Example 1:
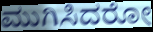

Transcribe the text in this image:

ಮುಗಿಸಿದರೋ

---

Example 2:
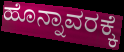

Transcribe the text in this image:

ಹೊನ್ನಾವರಕ್ಕೆ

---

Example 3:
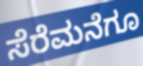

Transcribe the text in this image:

ಸೆರೆಮನೆಗೂ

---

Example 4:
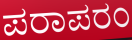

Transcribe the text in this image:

ಪರಾಪರಂ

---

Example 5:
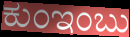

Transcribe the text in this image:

ಕುಂಇಂಬು